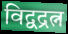
विद्वद्रत्न